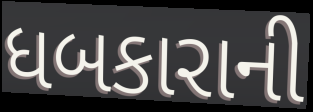
ધબકારાની